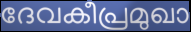
ദേവകീപ്രമുഖാ